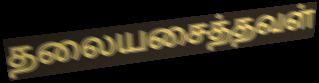
தலையசைத்தவள்